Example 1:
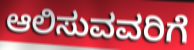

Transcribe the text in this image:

ಆಲಿಸುವವರಿಗೆ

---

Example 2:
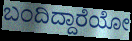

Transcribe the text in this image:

ಬಂದಿದ್ದಾರೆಯೋ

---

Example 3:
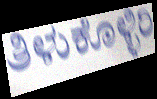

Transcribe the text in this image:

ತಿಳುಕೊಳ್ಳಿರಿ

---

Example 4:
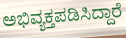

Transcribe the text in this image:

ಅಭಿವ್ಯಕ್ತಪಡಿಸಿದ್ದಾರೆ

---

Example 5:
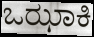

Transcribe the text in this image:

ಒಝಾಕಿ